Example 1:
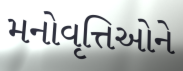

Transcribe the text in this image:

મનોવૃત્તિઓને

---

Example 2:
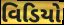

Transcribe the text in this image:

વિડિયો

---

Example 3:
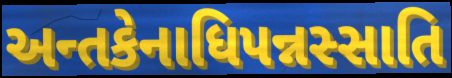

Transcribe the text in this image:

અન્તકેનાધિપન્નસ્સાતિ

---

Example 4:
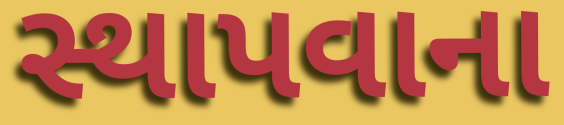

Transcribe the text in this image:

સ્થાપવાના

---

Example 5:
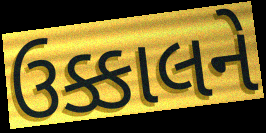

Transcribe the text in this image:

ઉક્કાલને